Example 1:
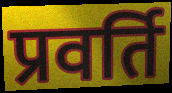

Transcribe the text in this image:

प्रवर्ति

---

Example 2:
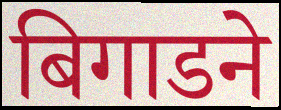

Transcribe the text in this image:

बिगाडने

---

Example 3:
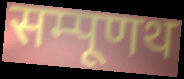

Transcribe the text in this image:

सम्पूणथ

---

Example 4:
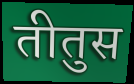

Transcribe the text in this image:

तीतुस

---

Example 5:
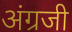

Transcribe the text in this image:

अंग्रजी